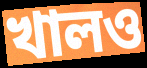
খালও